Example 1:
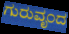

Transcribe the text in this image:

ಗುರುವೃಂದ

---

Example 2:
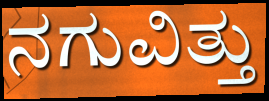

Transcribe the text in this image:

ನಗುವಿತ್ತು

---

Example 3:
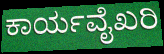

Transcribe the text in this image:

ಕಾರ್ಯವೈಖರಿ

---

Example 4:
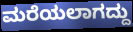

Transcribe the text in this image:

ಮರೆಯಲಾಗದ್ದು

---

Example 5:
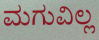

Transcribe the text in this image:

ಮಗುವಿಲ್ಲ